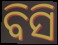
ବିସି